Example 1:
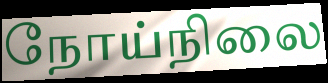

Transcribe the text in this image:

நோய்நிலை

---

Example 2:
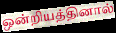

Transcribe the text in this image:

ஒன்றியத்தினால்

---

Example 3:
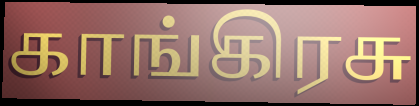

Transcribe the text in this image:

காங்கிரசு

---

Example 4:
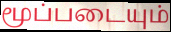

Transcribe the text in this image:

மூப்படையும்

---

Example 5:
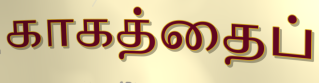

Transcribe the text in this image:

காகத்தைப்